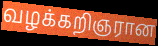
வழக்கறிஞரான